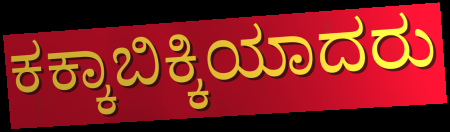
ಕಕ್ಕಾಬಿಕ್ಕಿಯಾದರು